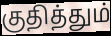
குதித்தும்